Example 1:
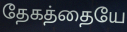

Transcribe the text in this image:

தேகத்தையே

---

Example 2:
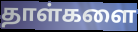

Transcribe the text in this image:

தாள்களை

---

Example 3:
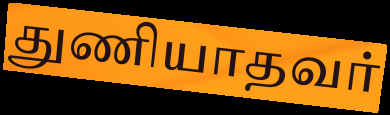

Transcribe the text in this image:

துணியாதவர்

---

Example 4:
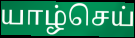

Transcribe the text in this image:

யாழ்செய்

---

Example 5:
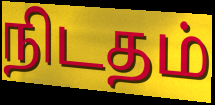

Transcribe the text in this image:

நிடதம்